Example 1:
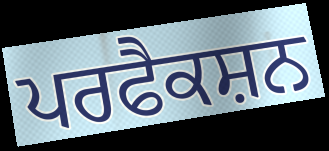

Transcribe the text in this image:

ਪਰਫੈਕਸ਼ਨ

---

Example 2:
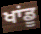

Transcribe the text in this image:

ਖਾਂਡੂ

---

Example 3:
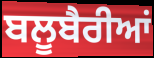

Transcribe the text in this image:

ਬਲੂਬੈਰੀਆਂ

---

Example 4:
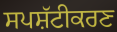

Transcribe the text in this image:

ਸਪਸ਼ੱਟੀਕਰਣ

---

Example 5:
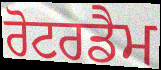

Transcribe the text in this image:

ਰੋਟਰਡੈਮ